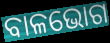
ବାଳଭୋଗ